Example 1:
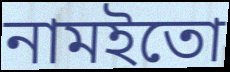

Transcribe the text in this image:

নামইতো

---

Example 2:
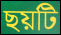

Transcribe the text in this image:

ছয়টি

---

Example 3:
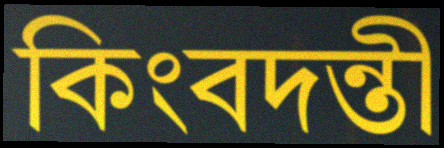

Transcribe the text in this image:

কিংবদন্তী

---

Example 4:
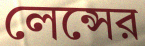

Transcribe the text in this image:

লেন্সের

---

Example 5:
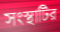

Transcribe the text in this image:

সংস্থাটির